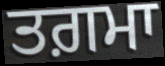
ਤਗ਼ਮਾ